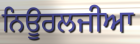
ਨਿਊਰਲਜੀਆ